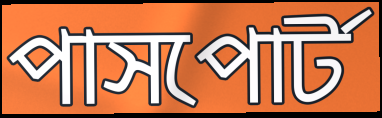
পাসপোর্ট